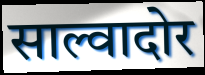
साल्वादोर